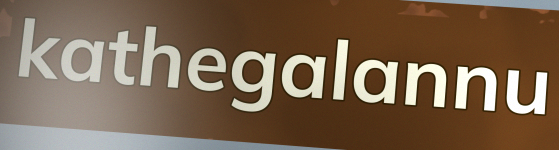
kathegalannu